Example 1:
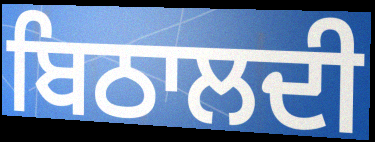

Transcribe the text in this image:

ਬਿਠਾਲਦੀ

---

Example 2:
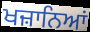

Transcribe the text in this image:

ਖਜ਼ਾਨਿਆਂ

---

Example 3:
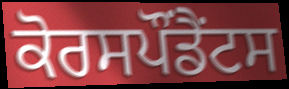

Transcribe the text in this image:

ਕੋਰਸਪੌਂਡੈਂਟਸ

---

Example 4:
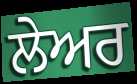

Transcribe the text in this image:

ਲੇਅਰ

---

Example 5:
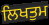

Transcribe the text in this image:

ਲਿਖਤੁਮ